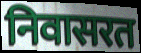
निवासरत